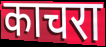
काचरा